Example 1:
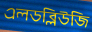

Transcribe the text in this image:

এলডব্লিউজি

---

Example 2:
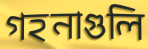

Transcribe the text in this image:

গহনাগুলি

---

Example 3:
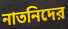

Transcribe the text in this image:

নাতনিদের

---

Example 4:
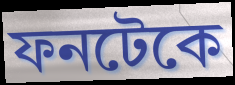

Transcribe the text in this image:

ফনটেকে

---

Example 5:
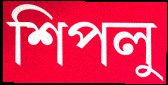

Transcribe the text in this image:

শিপলু